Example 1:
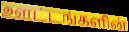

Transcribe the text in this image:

ஊட்டங்களின்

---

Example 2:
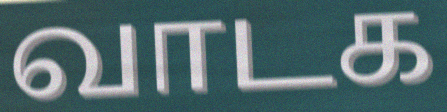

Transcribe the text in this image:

வாடக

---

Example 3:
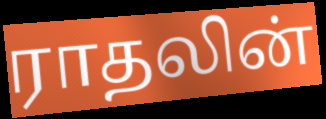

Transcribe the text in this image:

ராதலின்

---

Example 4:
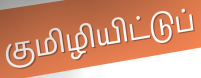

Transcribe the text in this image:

குமிழியிட்டுப்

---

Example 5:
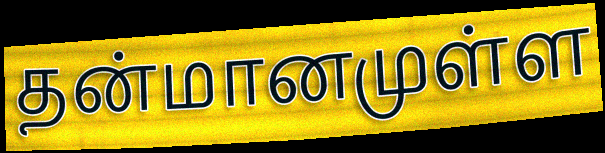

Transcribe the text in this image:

தன்மானமுள்ள